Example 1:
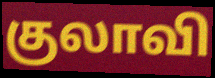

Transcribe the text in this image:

குலாவி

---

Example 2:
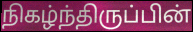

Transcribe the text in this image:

நிகழ்ந்திருப்பின்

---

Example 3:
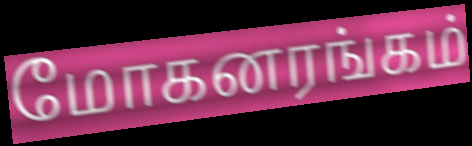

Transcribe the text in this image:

மோகனரங்கம்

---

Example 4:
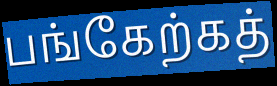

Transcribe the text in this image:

பங்கேற்கத்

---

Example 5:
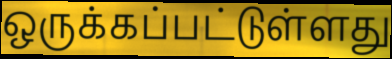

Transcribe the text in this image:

ஒருக்கப்பட்டுள்ளது